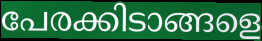
പേരക്കിടാങ്ങളെ